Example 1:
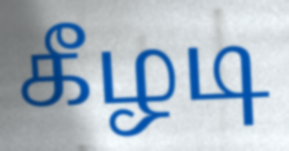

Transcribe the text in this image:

கீழடி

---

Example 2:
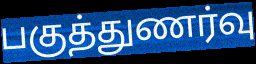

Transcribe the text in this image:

பகுத்துணர்வு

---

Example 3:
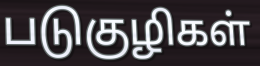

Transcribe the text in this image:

படுகுழிகள்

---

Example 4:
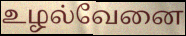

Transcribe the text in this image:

உழல்வேனை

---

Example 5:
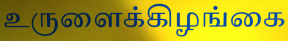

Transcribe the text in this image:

உருளைக்கிழங்கை